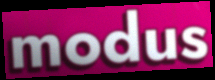
modus